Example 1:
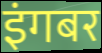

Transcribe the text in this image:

इंगबर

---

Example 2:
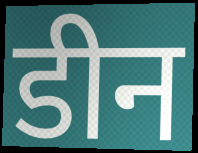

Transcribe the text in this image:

डीन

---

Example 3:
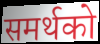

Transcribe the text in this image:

समर्थको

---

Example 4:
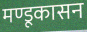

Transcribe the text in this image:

मण्डूकासन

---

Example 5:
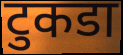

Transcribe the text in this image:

टुकडा